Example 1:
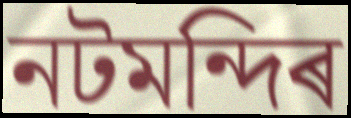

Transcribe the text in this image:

নটমন্দিৰ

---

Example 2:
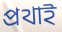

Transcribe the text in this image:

প্ৰথাই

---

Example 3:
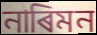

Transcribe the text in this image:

নাৰিমন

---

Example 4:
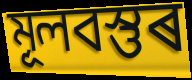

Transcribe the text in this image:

মূলবস্তুৰ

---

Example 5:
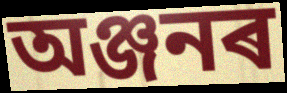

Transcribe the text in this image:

অঞ্জনৰ